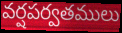
వర్షపర్వతములు